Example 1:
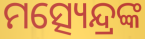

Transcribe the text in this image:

ମତ୍ସ୍ୟେନ୍ଦ୍ରଙ୍କ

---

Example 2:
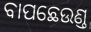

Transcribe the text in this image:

ବାପଛେଉଣ୍ଡ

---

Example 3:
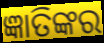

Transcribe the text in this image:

ଜ୍ଞାତିଙ୍କର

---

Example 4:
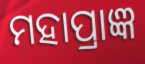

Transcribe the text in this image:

ମହାପ୍ରାଜ୍ଞ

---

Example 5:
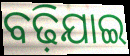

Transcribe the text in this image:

ବଢ଼ିଯାଇ